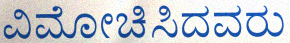
ವಿಮೋಚಿಸಿದವರು